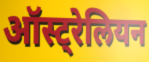
ऑस्ट्रेलियन